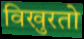
विखुरतो